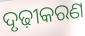
ଦୃଢ଼ୀକରଣ